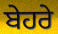
ਬੇਹਰੇ